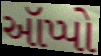
ઑપ્પો